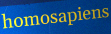
homosapiens